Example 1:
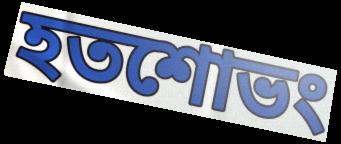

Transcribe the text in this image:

হতশোভং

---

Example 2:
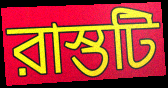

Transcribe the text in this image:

রাস্তটি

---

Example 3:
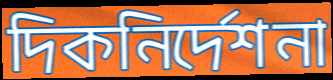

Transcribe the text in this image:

দিকনির্দেশনা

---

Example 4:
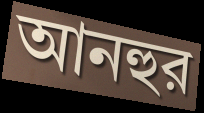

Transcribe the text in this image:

আনহুর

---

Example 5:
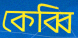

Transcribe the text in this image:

কেব্বি